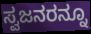
ಸ್ವಜನರನ್ನೂ